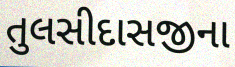
તુલસીદાસજીના